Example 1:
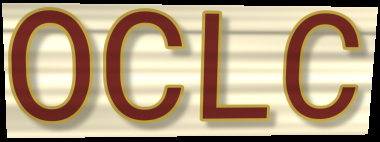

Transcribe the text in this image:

OCLC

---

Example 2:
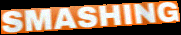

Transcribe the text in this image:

SMASHING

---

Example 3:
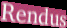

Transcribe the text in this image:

Rendus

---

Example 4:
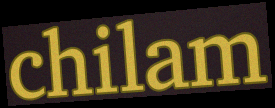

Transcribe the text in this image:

chilam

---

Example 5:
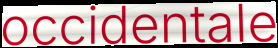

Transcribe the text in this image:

occidentale